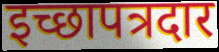
इच्छापत्रदार